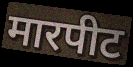
मारपीट